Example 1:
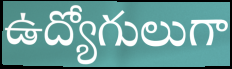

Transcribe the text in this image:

ఉద్యోగులుగా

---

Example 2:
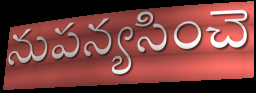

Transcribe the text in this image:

నుపన్యసించె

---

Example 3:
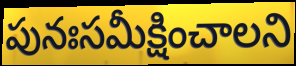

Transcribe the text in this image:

పునఃసమీక్షించాలని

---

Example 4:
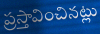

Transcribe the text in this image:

ప్రస్తావించినట్లు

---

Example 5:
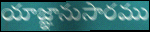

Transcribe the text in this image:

యాజ్ఞానుసారము